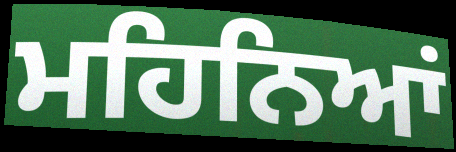
ਮਹਿਨਿਆਂ